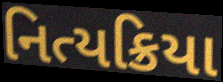
નિત્યક્રિયા